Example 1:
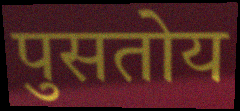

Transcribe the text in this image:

पुसतोय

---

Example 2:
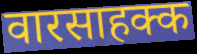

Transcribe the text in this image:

वारसाहक्क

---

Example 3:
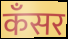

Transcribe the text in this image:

कँसर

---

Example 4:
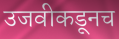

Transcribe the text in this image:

उजवीकडूनच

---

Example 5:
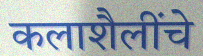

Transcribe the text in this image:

कलाशैलींचे